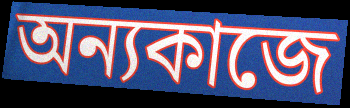
অন্যকাজে